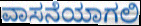
ವಾಸನೆಯಾಗಲಿ